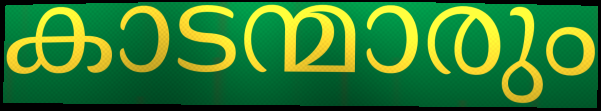
കാടന്മാരും